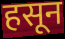
हसून